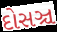
દોસઞ્ચ